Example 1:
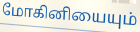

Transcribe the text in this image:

மோகினியையும்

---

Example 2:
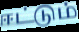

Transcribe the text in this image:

ஈட்டும்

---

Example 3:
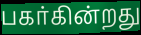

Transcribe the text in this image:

பகர்கின்றது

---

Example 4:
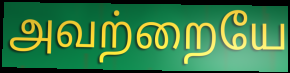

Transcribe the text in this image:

அவற்றையே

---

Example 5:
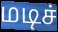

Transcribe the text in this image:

மடிச்